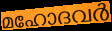
മഹോദവർ